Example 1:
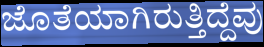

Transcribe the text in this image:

ಜೊತೆಯಾಗಿರುತ್ತಿದ್ದೆವು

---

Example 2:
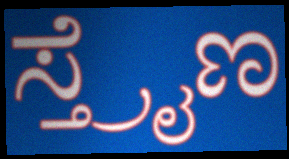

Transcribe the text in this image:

ಸ್ತ್ರೈಣ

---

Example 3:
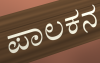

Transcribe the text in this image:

ಪಾಲಕನ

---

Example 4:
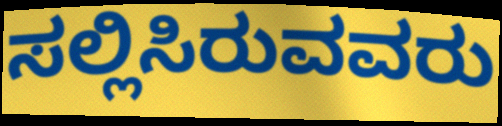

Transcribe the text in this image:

ಸಲ್ಲಿಸಿರುವವರು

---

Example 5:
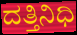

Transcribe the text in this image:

ದತ್ತಿನಿಧಿ